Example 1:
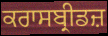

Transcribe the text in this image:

ਕਰਾਸਬ੍ਰੀਡਜ਼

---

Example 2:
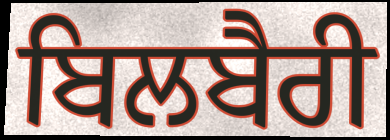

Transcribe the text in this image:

ਬਿਲਬੈਰੀ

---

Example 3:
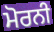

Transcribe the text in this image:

ਮੋਰਨੀ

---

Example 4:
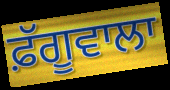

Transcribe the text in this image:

ਫ਼ੱਗੂਵਾਲਾ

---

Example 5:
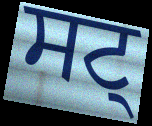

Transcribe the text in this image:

ਸਟ੍